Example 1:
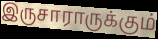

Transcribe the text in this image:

இருசாராருக்கும்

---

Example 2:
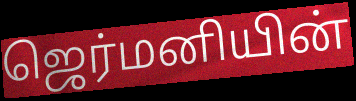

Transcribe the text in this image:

ஜெர்மனியின்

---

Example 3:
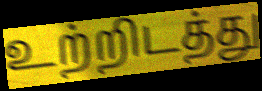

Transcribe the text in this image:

உற்றிடத்து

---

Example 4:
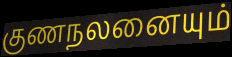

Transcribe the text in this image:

குணநலனையும்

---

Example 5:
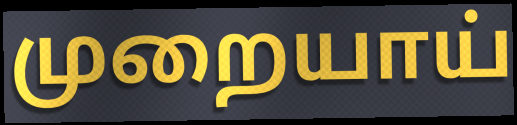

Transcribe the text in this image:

முறையாய்